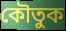
কৌতুক